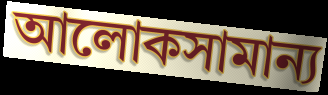
আলোকসামান্য